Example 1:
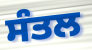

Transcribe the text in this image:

ਸੰਤਲ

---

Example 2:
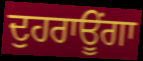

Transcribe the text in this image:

ਦੁਹਰਾਊਂਗਾ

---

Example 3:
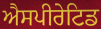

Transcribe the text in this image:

ਐਸਪੀਰੇਟਿਡ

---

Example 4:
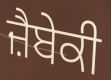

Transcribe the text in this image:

ਜ਼ੈਬੇਕੀ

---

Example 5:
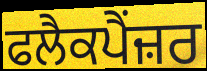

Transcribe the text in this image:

ਫਲੈਕਪੈਂਜ਼ਰ